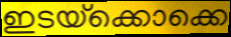
ഇടയ്‌ക്കൊക്കെ